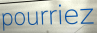
pourriez